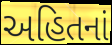
અહિતનાં